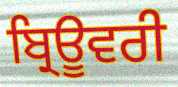
ਬ੍ਰਿਊਵਰੀ